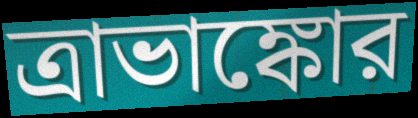
ত্রাভাঙ্কোর